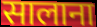
सालाना